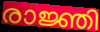
രാജ്ഞി